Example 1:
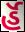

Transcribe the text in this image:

ર્હૅ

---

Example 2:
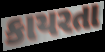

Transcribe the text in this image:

કાયરતા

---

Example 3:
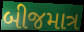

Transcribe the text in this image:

બીજમાત્ર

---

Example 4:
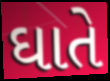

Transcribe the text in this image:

ઘાતે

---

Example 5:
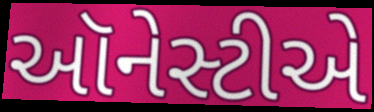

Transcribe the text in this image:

ઑનેસ્ટીએ